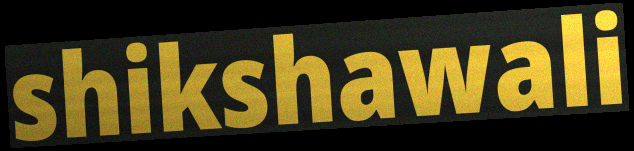
shikshawali